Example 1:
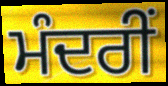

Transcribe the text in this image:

ਮੰਦਰੀਂ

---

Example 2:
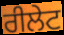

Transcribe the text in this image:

ਰੀਲੇਟ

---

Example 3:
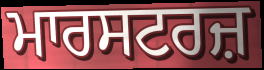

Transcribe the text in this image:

ਮਾਰਸਟਰਜ਼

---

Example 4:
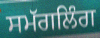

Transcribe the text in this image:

ਸਮੱਗਲਿੰਗ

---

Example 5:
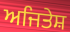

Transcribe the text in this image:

ਅਜਿਤੇਸ਼